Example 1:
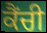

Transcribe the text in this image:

ਕੈਂਚੀ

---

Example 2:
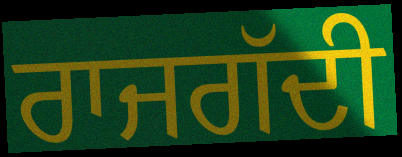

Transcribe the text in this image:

ਰਾਜਗੱਦੀ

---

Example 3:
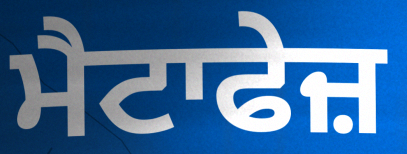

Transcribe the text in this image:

ਮੈਟਾਫੇਜ਼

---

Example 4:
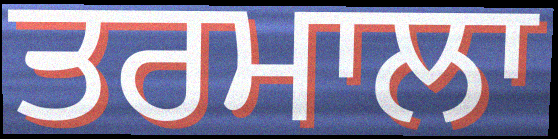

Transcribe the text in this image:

ਤਰਮਾਲਾ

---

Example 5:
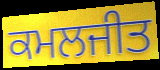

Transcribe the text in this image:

ਕਮਲਜੀਤ